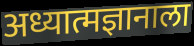
अध्यात्मज्ञानाला